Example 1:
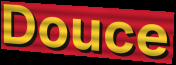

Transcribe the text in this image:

Douce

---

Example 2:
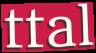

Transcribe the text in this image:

ttal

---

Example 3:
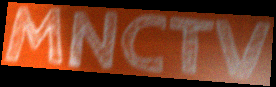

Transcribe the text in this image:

MNCTV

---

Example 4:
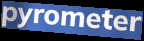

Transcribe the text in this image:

pyrometer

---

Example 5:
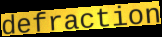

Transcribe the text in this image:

defraction